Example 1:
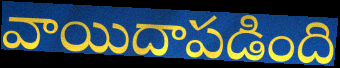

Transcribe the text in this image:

వాయిదాపడింది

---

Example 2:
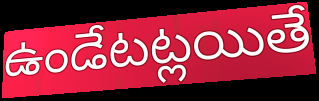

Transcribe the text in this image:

ఉండేటట్లయితే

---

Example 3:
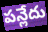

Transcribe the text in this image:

పన్లేదు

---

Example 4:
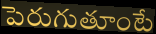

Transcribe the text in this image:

పెరుగుతూంటే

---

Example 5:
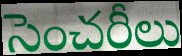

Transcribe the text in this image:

సెంచరీలు